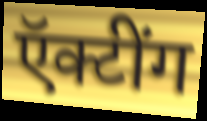
ऍक्टींग